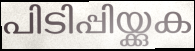
പിടിപ്പിയ്ക്കുക